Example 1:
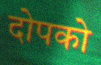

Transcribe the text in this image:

दोपको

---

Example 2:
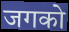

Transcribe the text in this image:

जगको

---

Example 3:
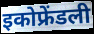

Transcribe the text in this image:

इकोफ्रेंडली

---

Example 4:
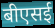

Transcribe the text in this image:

बीएसई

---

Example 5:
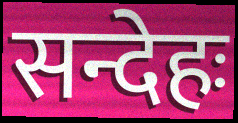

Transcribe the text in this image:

सन्देहः